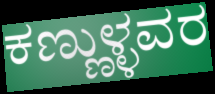
ಕಣ್ಣುಳ್ಳವರ